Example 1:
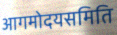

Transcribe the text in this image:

आगमोदयसमिति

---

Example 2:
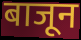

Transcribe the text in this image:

बाजून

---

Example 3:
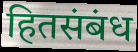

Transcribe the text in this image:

हितसंबंध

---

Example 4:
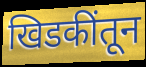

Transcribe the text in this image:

खिडकींतून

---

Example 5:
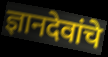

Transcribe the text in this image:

ज्ञानदेवांचे